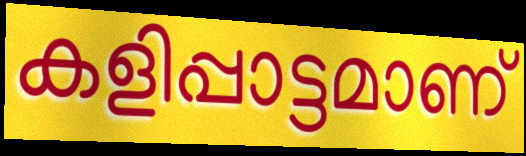
കളിപ്പാട്ടമാണ്